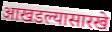
आखडल्यासारखे